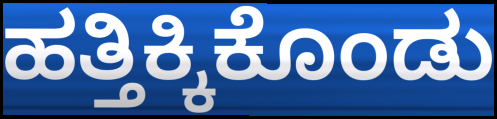
ಹತ್ತಿಕ್ಕಿಕೊಂಡು